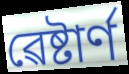
ৱেষ্টাৰ্ণ